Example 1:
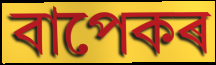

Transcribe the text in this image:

বাপেকৰ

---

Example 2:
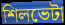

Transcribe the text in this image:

শিলভেটা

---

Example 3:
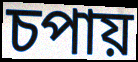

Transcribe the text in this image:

চপায়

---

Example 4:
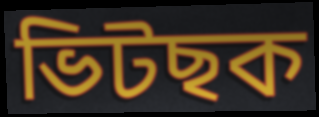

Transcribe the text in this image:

ভিটছক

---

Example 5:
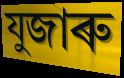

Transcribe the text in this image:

যুজাৰু